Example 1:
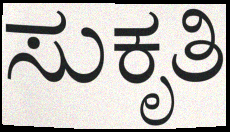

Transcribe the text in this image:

ಸುಕೃತಿ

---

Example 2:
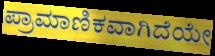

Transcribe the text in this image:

ಪ್ರಾಮಾಣಿಕವಾಗಿದೆಯೇ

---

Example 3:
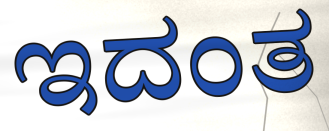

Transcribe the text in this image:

ಇದಂತ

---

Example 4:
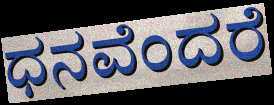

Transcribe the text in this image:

ಧನವೆಂದರೆ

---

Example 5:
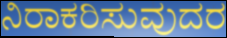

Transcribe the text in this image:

ನಿರಾಕರಿಸುವುದರ